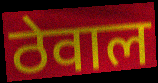
ठेवाल